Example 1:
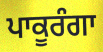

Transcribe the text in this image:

ਪਾਕੂਰੰਗਾ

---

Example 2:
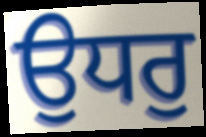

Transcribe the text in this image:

ਉਧਰੁ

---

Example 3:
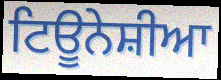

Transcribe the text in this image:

ਟਿਊਨੇਸ਼ੀਆ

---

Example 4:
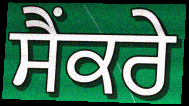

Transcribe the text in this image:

ਸੈਂਕਰੇ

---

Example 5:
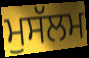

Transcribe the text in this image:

ਮੁਸੱਲਮ